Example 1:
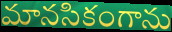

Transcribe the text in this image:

మానసికంగాను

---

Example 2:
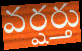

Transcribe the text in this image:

వర్షర్తు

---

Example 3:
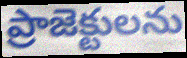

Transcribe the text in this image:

ప్రాజెక్టులను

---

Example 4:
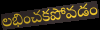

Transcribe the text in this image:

లభించకపోవడం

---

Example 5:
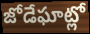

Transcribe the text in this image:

జోడేఘాట్లో